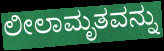
ಲೀಲಾಮೃತವನ್ನು